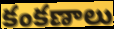
కంకణాలు